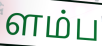
ளம்ப